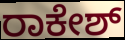
ರಾಕೇಶ್